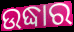
ଉଦ୍ଧାର